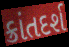
ક્રાંતદર્શ